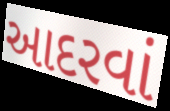
આદરવાં